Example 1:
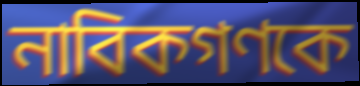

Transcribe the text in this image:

নাবিকগণকে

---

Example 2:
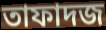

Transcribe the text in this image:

তাফাদজ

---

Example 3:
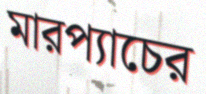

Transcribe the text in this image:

মারপ্যাচের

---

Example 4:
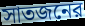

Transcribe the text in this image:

সাতজনের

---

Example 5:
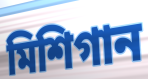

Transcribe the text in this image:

মিশিগান